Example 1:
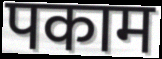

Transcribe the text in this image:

पकाम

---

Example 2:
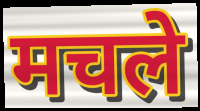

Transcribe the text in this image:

मचले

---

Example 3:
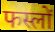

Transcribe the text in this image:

फस्लों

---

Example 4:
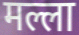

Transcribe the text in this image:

मल्ला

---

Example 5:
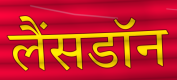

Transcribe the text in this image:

लैंसडॉन